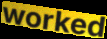
worked